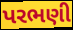
પરભણી